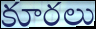
కూరలు